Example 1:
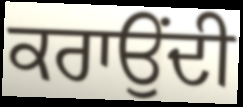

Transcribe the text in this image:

ਕਰਾਉਂਦੀ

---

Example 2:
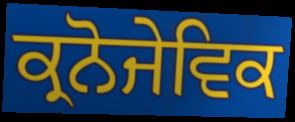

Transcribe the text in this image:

ਕ੍ਰਨੋਜੇਵਿਕ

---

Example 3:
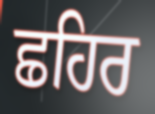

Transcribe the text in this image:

ਛਹਿਰ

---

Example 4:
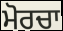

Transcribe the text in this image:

ਮੋਰਚਾ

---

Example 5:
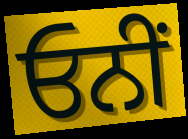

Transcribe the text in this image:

ਓਨੀਂ